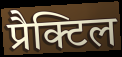
प्रैक्टिल